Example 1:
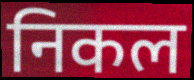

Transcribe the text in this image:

निकल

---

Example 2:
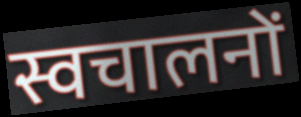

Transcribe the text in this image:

स्वचालनों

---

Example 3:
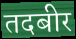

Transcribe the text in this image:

तदबीर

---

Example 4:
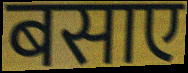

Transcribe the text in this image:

बसाए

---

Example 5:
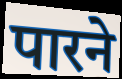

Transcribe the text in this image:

पारने